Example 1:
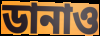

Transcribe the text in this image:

ডানাও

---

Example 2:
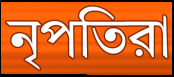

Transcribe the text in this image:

নৃপতিরা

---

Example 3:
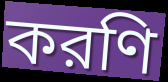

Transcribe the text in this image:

করণি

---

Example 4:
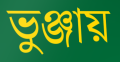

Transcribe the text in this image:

ভুঞ্জায়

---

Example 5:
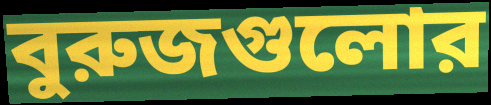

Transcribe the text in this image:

বুরুজগুলোর